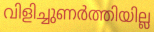
വിളിച്ചുണർത്തിയില്ല